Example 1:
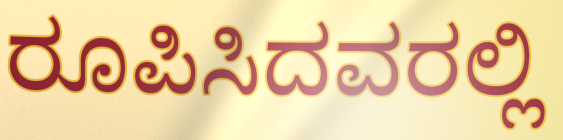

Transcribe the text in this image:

ರೂಪಿಸಿದವರಲ್ಲಿ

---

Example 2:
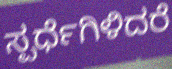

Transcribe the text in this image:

ಸ್ಪರ್ಧೆಗಿಳಿದರೆ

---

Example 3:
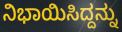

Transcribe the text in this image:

ನಿಭಾಯಿಸಿದ್ದನ್ನು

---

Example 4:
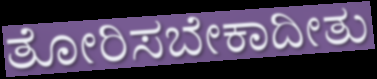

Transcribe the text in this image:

ತೋರಿಸಬೇಕಾದೀತು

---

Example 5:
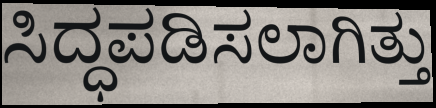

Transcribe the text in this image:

ಸಿದ್ಧಪಡಿಸಲಾಗಿತ್ತು